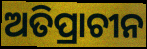
ଅତିପ୍ରାଚୀନ